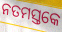
ନତମସ୍ତକେ